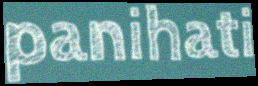
panihati